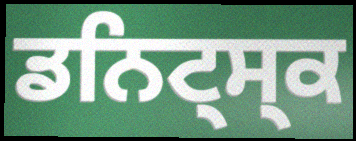
ਡਨਿਟ੍ਸ੍ਕ